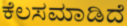
ಕೆಲಸಮಾಡಿದೆ